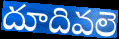
దూదివలె